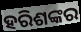
ହରିଶଙ୍କର